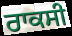
ਰਾਕਸੀ